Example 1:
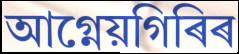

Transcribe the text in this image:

আগ্নেয়গিৰিৰ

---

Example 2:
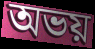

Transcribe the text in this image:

অভয়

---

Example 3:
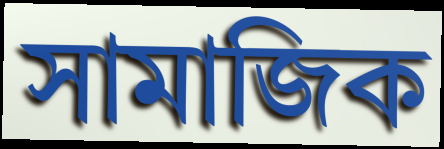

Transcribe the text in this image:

সামাজিক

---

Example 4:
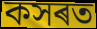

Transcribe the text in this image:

কসৰত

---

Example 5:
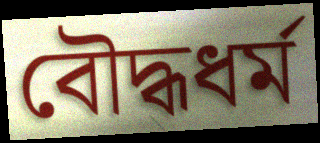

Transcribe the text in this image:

বৌদ্ধধৰ্ম